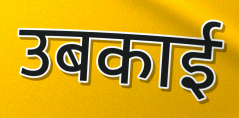
उबकाई